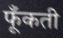
फूँकती